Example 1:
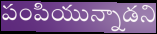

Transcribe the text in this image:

పంపియున్నాడని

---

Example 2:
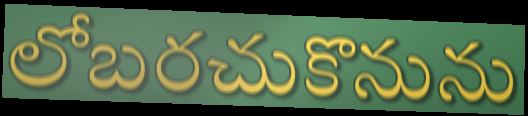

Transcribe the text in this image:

లోబరచుకొనును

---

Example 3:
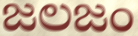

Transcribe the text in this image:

జలజం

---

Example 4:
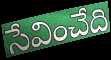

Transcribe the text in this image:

సేవించేది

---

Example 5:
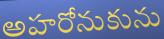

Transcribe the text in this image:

అహరోనుకును